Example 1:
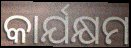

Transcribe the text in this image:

କାର୍ଯକ୍ଷମ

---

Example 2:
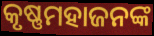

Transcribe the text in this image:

କୃଷ୍ଣମହାଜନଙ୍କ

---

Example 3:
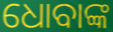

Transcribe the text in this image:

ଧୋବାଙ୍କ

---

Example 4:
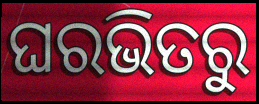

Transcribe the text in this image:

ଘରଭିତରୁ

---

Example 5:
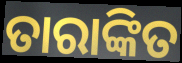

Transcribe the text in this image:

ତାରାଙ୍କିତ